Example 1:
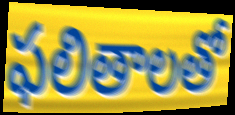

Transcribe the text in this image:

ఫలితాలతో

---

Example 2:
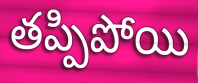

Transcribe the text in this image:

తప్పిపోయి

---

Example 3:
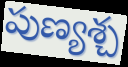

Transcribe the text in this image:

పుణ్యశ్చ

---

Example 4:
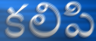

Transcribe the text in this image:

కలిపి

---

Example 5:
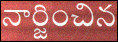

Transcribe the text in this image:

నార్జించిన